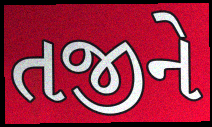
તજીને